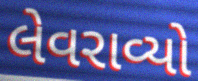
લેવરાવ્યો